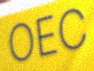
OEC